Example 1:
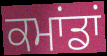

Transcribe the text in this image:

ਕਮਾਂਡਾਂ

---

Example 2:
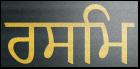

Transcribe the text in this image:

ਰਸਮਿ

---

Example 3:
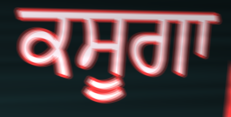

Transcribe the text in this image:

ਕਸੂਗਾ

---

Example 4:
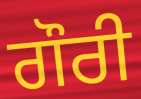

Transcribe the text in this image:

ਗੌਰੀ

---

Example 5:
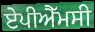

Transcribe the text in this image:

ਏਪੀਐੱਮਸੀ